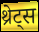
थ्रेट्स